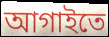
আগাইতে